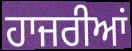
ਹਾਜਰੀਆਂ